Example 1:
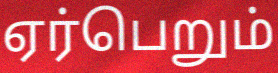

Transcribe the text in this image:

ஏர்பெறும்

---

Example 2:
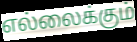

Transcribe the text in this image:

எல்லைக்கும்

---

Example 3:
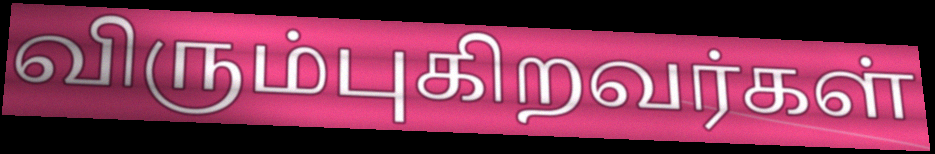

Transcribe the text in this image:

விரும்புகிறவர்கள்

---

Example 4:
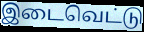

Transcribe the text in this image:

இடைவெட்டு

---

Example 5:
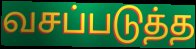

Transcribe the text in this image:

வசப்படுத்த